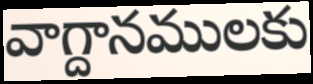
వాగ్దానములకు